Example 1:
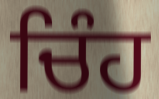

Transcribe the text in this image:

ਚਿੰਹ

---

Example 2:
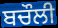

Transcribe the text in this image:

ਬਚੌਲੀ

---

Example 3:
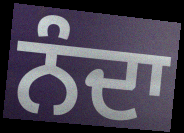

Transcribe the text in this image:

ਨੰਦਾ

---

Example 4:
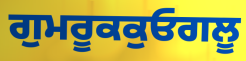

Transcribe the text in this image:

ਗੁਮਰੂਕਕੁਓਗਲੂ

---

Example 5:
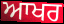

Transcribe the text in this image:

ਆਖਰ